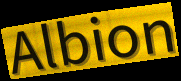
Albion